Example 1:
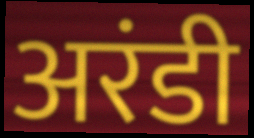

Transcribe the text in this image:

अरंडी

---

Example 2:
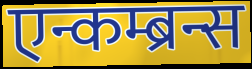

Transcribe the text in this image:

एन्कम्ब्रन्स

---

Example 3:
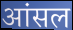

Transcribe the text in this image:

आंसल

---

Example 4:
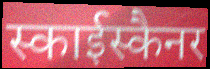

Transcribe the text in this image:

स्काईस्कैनर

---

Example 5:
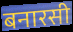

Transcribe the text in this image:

बनारसी